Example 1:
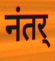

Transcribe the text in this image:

नंतर्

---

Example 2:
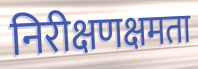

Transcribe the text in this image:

निरीक्षणक्षमता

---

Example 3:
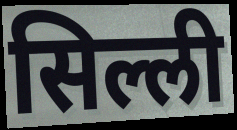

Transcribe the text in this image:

सिल्ली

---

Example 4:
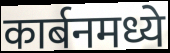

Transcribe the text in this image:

कार्बनमध्ये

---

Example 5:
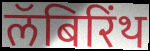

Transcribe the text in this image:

लॅबिरिंथ